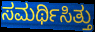
ಸಮರ್ಥಿಸಿತ್ತು